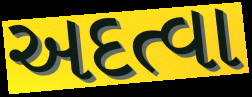
અદત્વા